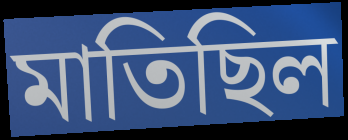
মাতিছিল